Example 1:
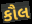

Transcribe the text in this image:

કૌલ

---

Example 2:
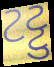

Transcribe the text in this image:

ટટ્ટુ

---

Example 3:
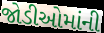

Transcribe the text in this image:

જોડીઓમાંની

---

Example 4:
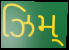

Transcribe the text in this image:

ઝિમ્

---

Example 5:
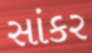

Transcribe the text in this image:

સાંકર